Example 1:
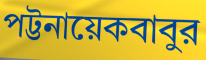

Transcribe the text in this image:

পট্টনায়েকবাবুর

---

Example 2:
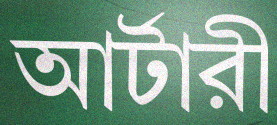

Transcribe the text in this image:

আর্টারী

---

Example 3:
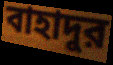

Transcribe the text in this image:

বাহাদুর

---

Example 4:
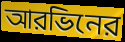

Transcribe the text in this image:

আরভিনের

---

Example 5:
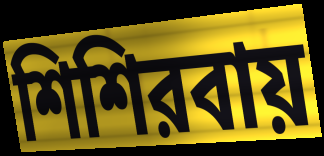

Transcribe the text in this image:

শিশিরবায়